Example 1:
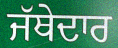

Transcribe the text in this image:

ਜੱਥੇਦਾਰ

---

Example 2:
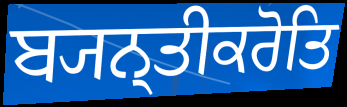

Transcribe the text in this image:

ਬ੍ਯਨ੍ਤੀਕਰੋਤਿ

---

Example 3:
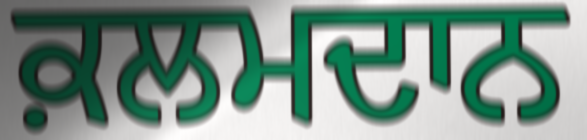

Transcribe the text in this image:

ਕ਼ਲਮਦਾਨ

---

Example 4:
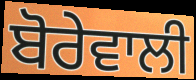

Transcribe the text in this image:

ਬੋਰੇਵਾਲੀ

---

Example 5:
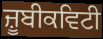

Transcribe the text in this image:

ਜ਼ੂਬੀਕਵਿਟੀ